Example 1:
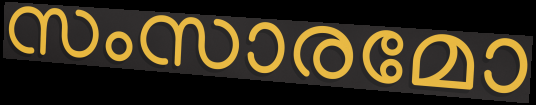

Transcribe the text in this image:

സംസാരമോ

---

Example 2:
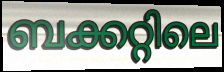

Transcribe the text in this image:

ബക്കറ്റിലെ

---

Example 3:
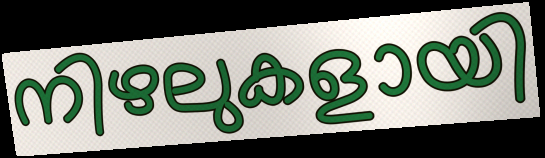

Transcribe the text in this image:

നിഴലുകളായി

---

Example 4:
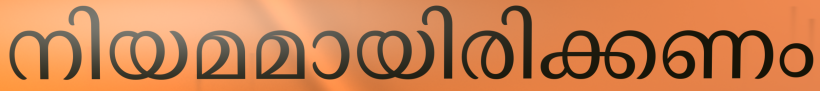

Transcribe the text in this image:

നിയമമായിരിക്കണം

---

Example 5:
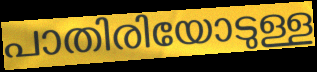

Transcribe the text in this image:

പാതിരിയോടുള്ള